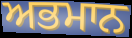
ਅਭਮਾਨ